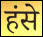
हंसे